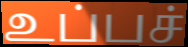
உப்பச்